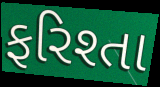
ફરિશ્તા